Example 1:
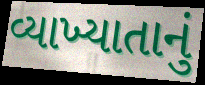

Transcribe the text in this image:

વ્યાખ્યાતાનું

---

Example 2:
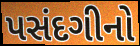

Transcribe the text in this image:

પસંદગીનો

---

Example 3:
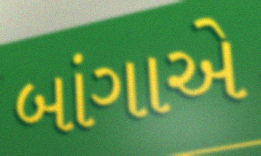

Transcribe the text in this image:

બાંગાએ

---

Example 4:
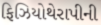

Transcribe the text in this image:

ફિઝિયોથેરાપીની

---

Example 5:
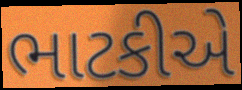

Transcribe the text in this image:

ભાટકીએ